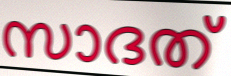
സാദത്